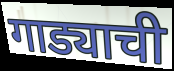
गाड्याची